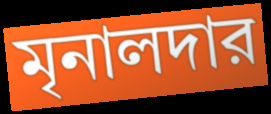
মৃনালদার